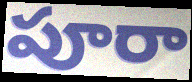
పూరా